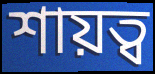
শায়ত্ব